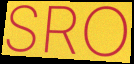
SRO